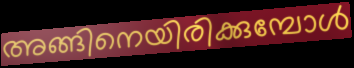
അങ്ങിനെയിരിക്കുമ്പോൾ